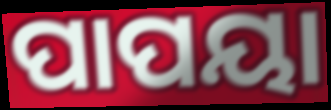
ପାପୟା